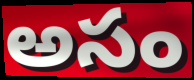
అసం